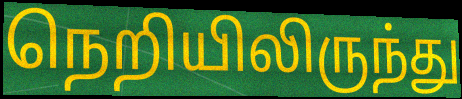
நெறியிலிருந்து